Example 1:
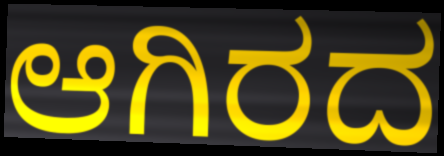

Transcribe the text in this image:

ಆಗಿರದ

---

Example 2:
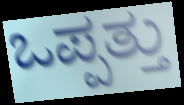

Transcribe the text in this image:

ಒಪ್ಪತ್ತು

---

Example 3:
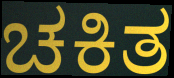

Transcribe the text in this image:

ಚಕಿತ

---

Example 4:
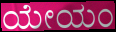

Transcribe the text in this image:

ಯೇಯಂ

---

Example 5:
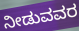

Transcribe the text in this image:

ನೀಡುವವರ